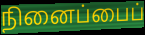
நினைப்பைப்